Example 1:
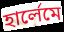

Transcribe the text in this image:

হার্লেমে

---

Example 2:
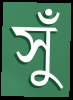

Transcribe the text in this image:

সুঁ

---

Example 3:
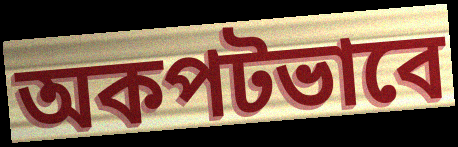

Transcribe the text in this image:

অকপটভাবে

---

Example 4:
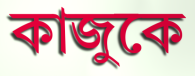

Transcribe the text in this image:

কাজুকে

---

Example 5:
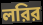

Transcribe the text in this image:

লরির